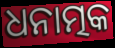
ଧନାତ୍ମକ